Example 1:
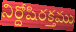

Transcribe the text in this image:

నిర్దోషిరక్తము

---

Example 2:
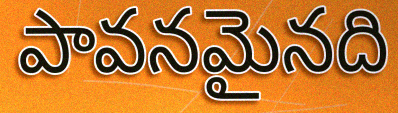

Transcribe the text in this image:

పావనమైనది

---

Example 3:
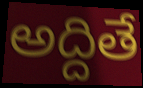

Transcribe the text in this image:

అద్దితే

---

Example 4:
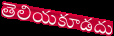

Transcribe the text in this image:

తెలియకూడదు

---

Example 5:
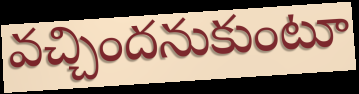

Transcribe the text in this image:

వచ్చిందనుకుంటూ